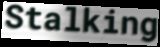
Stalking